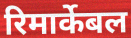
रिमार्केबल